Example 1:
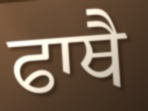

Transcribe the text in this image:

ਫਾਥੈ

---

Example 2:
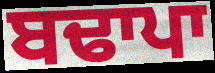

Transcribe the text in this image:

ਬਢਾਪਾ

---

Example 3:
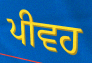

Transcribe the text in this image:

ਪੀਵਹ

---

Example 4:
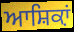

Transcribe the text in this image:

ਆਸ਼ਿਕ਼ਾਂ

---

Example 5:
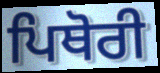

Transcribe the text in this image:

ਪਿਥੋਰੀ